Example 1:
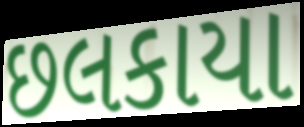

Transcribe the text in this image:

છલકાયા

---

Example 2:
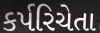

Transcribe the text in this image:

કર્પરિચેતા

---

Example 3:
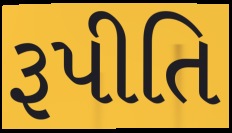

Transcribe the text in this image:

રૂપીતિ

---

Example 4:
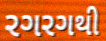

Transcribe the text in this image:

રગરગથી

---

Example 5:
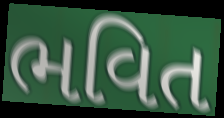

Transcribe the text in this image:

ભવિત